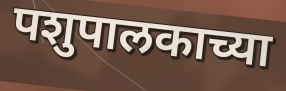
पशुपालकाच्या